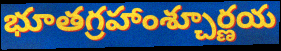
భూతగ్రహాంశ్చూర్ణయ